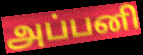
அப்பனி